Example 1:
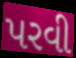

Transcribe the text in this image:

પરવી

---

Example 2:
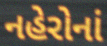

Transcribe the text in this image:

નહેરોનાં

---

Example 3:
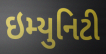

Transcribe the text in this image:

ઇમ્યુનિટી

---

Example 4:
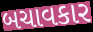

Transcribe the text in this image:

બચાવકાર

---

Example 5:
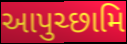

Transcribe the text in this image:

આપુચ્છામિ